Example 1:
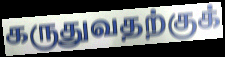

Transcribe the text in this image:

கருதுவதற்குக்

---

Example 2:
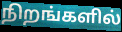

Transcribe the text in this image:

நிறங்களில்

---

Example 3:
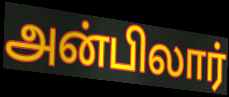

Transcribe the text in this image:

அன்பிலார்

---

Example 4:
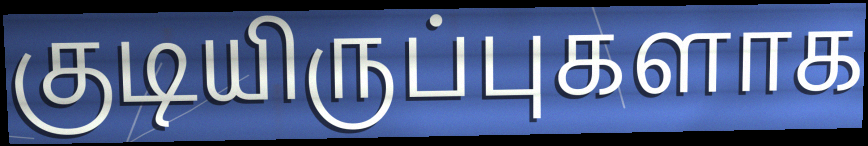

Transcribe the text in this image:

குடியிருப்புகளாக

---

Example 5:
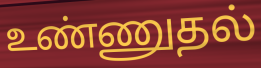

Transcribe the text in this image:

உண்ணுதல்